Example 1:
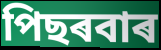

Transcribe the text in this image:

পিছৰবাৰ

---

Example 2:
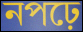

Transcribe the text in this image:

নপঢ়ে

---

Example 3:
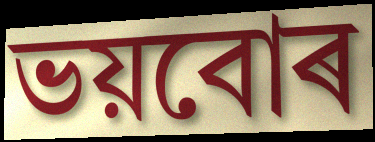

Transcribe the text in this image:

ভয়বোৰ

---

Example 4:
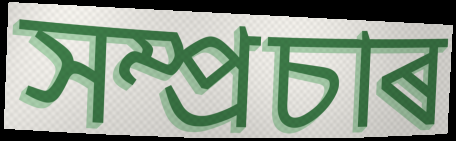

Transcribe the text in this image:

সম্প্ৰচাৰ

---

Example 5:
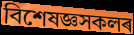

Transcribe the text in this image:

বিশেষজ্ঞসকলৰ